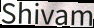
Shivam